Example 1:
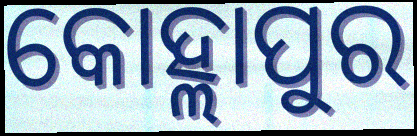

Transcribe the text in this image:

କୋହ୍ଲାପୁର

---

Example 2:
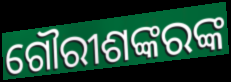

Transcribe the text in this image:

ଗୌରୀଶଙ୍କରଙ୍କ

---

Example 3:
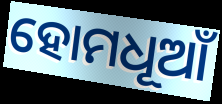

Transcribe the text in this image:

ହୋମଧୂଆଁ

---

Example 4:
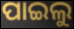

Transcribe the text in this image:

ପାଇଲୁ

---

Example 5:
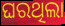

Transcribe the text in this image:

ଘରଥିଲା